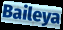
Baileya